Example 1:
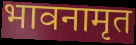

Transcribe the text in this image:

भावनामृत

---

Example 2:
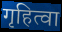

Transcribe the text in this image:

गृहित्वा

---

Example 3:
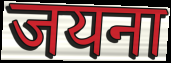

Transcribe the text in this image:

जयना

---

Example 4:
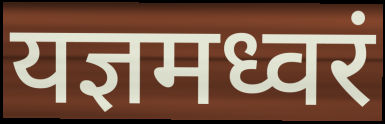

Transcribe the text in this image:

यज्ञमध्वरं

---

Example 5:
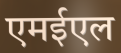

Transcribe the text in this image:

एमईएल